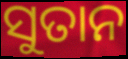
ସୁତାନ